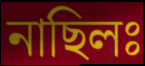
নাছিলঃ